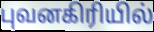
புவனகிரியில்